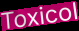
Toxicol